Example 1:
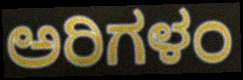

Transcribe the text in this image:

ಅರಿಗಳಂ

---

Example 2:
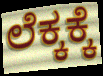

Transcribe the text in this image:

ಲೆಕ್ಕಕ್ಕೆ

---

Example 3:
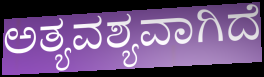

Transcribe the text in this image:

ಅತ್ಯವಶ್ಯವಾಗಿದೆ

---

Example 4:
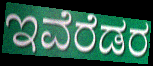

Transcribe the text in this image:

ಇವೆರೆಡರ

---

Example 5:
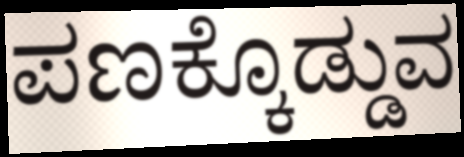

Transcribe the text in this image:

ಪಣಕ್ಕೊಡ್ಡುವ